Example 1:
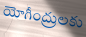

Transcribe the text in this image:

యోగీంద్రులకు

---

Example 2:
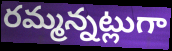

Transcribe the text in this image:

రమ్మన్నట్లుగా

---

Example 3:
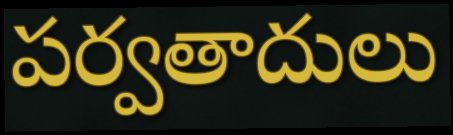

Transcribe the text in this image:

పర్వతాదులు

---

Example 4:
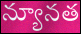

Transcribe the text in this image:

న్యూనత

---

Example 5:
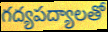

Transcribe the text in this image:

గద్యపద్యాలతో